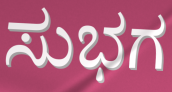
ಸುಭಗ